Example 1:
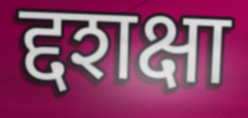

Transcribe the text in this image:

द्दशक्षा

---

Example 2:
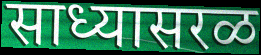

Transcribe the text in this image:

साध्यासरळ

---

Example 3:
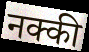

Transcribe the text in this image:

नक्की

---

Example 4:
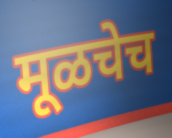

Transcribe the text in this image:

मूळचेच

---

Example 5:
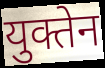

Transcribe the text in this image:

युक्तेन